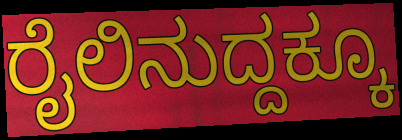
ರೈಲಿನುದ್ದಕ್ಕೂ